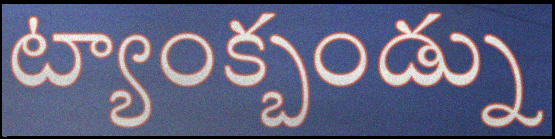
ట్యాంక్బండ్ను